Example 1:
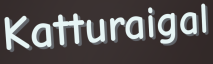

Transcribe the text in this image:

Katturaigal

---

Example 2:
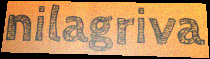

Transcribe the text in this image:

nilagriva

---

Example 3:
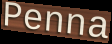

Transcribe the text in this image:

Penna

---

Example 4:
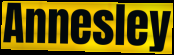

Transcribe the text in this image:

Annesley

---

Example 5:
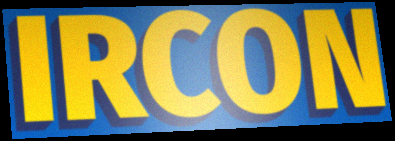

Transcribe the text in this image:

IRCON